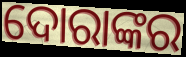
ଦୋରାଙ୍କର